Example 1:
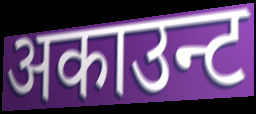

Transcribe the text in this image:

अकाउन्ट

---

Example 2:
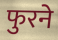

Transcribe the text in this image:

फुरने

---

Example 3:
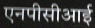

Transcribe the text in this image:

एनपीसीआई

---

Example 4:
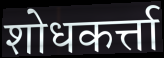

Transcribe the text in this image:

शोधकर्त्ता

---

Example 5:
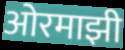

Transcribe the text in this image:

ओरमाझी